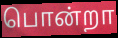
பொன்றா